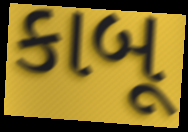
કાબૂ